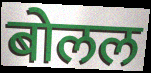
बोलल